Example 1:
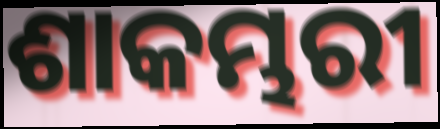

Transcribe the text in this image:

ଶାକମ୍ଭରୀ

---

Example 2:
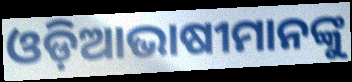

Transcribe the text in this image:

ଓଡ଼ିଆଭାଷୀମାନଙ୍କୁ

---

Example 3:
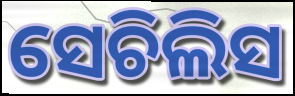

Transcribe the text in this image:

ସେଚିଲିସ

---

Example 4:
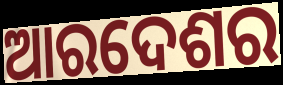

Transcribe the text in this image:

ଆରଦେଶର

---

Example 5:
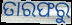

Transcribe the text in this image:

ତାରଫରୁ